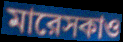
মারেসকাও